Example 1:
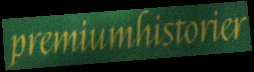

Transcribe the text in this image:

premiumhistorier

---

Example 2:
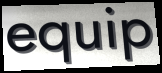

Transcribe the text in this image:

equip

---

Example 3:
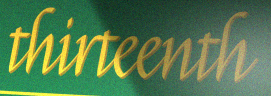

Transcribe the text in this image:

thirteenth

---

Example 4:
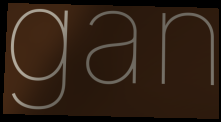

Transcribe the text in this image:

gan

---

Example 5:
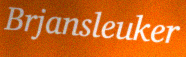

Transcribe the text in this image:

Brjansleuker